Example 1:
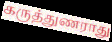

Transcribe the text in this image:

கருத்துணராது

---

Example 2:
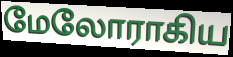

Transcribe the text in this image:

மேலோராகிய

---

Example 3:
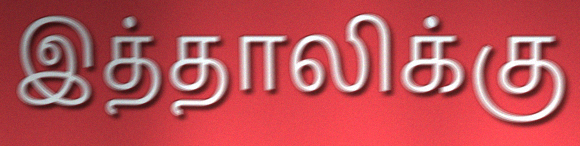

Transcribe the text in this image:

இத்தாலிக்கு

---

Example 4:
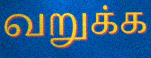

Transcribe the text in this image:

வறுக்க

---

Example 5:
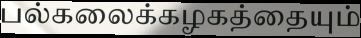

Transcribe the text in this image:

பல்கலைக்கழகத்தையும்